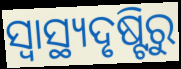
ସ୍ୱାସ୍ଥ୍ୟଦୃଷ୍ଟିରୁ